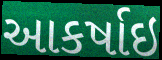
આકર્ષાઇ